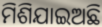
ମିଶିଯାଇଅଛି